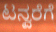
ಟನ್ವರೆಗೆ